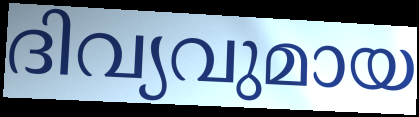
ദിവ്യവുമായ